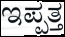
ಇಪ್ಪತ್ತ